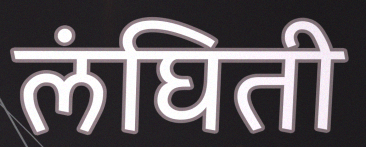
लंघिती